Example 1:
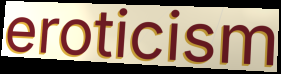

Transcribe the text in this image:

eroticism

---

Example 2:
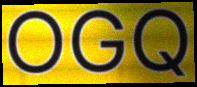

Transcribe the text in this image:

OGQ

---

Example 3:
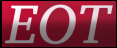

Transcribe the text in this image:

EOT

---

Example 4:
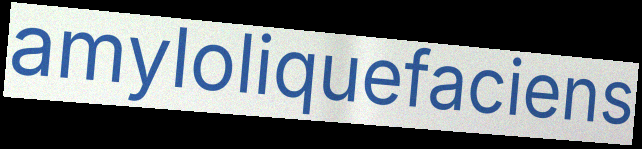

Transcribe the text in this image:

amyloliquefaciens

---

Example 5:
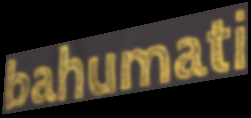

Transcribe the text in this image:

bahumati